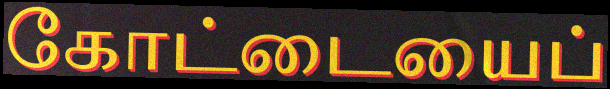
கோட்டையைப்